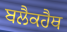
ਬਲੈਕਹੈਥ